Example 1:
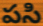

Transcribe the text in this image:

పసి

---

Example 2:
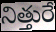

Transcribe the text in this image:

నిత్తురే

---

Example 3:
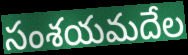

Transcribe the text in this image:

సంశయమదేల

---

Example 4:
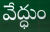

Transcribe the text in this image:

వేద్ధుం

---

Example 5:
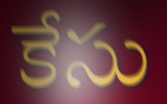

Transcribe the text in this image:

కేసు